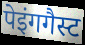
पेइंगगैस्ट